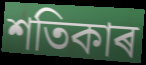
শতিকাৰ